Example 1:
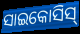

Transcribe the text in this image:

ସାଇକୋସିସ୍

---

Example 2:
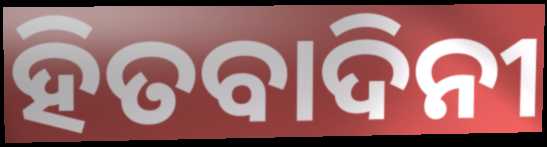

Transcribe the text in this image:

ହିତବାଦିନୀ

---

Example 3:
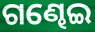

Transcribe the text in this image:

ଗଣ୍ଢେଇ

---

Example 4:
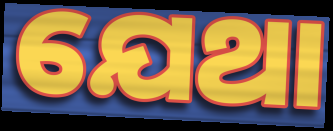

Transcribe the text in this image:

ଯେଥା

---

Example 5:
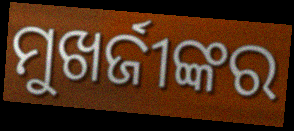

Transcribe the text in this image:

ମୁଖର୍ଜୀଙ୍କର